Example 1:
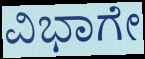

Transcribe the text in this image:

ವಿಭಾಗೇ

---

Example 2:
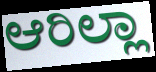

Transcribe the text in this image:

ಆರಿಲ್ಲಾ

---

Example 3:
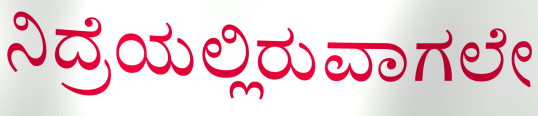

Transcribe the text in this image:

ನಿದ್ರೆಯಲ್ಲಿರುವಾಗಲೇ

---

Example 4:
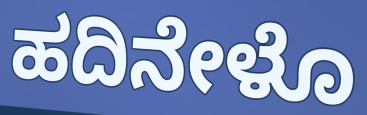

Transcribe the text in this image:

ಹದಿನೇಳೊ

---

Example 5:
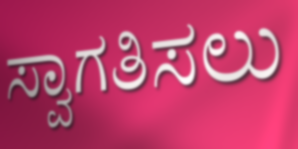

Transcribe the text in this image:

ಸ್ವಾಗತಿಸಲು